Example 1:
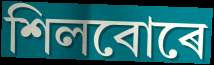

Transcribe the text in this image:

শিলবোৰে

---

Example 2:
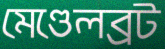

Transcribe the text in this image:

মেণ্ডেলব্ৰট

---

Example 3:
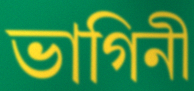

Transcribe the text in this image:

ভাগিনী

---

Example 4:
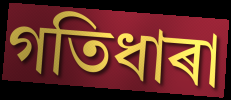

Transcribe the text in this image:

গতিধাৰা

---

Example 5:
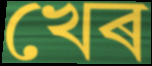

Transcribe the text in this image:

খেৰ